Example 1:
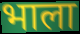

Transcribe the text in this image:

भाला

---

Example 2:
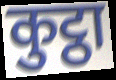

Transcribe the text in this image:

कुट्ठा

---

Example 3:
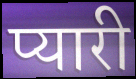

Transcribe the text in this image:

प्यारी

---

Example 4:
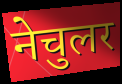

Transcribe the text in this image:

नेचुलर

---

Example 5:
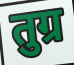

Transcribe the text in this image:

तुग्र